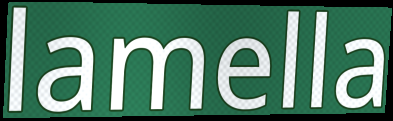
lamella